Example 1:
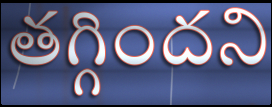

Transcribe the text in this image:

తగ్గిందని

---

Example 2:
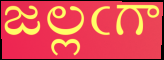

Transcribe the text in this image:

జల్లఁగా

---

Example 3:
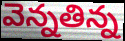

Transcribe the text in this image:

వెన్నతిన్న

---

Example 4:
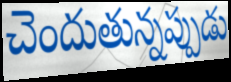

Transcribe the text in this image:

చెందుతున్నప్పుడు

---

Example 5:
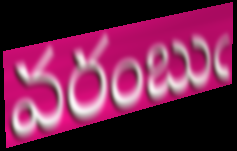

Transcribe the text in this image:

వరంబుఁ